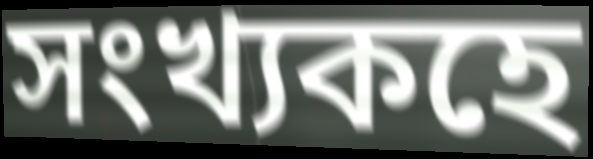
সংখ্যকহে